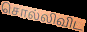
சொல்லிவிட